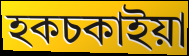
হকচকাইয়া